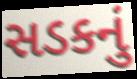
સડકનું